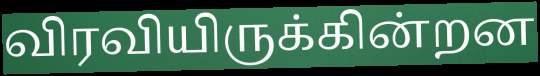
விரவியிருக்கின்றன